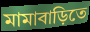
মামাবাড়িতে